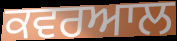
ਕਵਰਆਲ